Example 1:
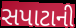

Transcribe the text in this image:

સપાટાની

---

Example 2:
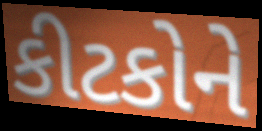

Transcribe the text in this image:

કીટકોને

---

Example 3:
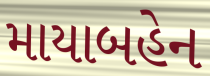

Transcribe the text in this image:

માયાબહેન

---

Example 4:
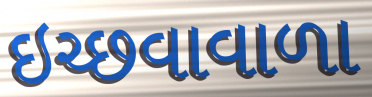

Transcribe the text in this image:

ઇચ્છવાવાળા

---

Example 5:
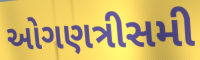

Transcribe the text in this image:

ઓગણત્રીસમી